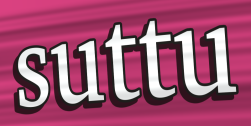
suttu